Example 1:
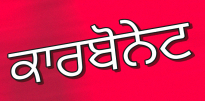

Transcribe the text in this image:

ਕਾਰਬੋਨੇਟ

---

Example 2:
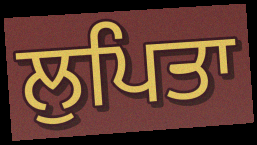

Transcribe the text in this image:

ਲੁਪਿਤਾ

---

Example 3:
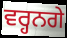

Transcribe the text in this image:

ਵਰ੍ਹਨਗੇ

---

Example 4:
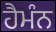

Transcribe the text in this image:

ਹੈਮੰਨ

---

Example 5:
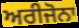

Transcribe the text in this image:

ਅਰੀਜੋਨਾ